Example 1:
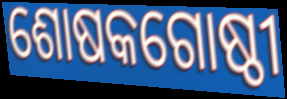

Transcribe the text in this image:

ଶୋଷକଗୋଷ୍ଠୀ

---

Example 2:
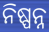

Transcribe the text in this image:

ନିଷ୍ପନ୍ନ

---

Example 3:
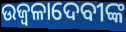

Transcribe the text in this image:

ଉଜ୍ୱଳାଦେବୀଙ୍କ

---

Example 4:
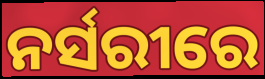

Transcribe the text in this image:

ନର୍ସରୀରେ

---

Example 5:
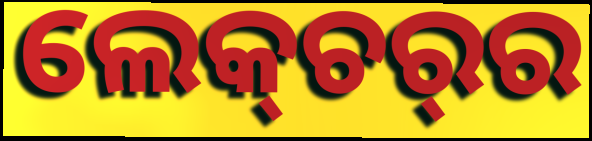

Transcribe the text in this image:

ଲେକ୍‌ଚର୍‌ର